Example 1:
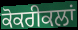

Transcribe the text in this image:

ਕੋਕਰੀਕਲਾਂ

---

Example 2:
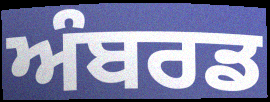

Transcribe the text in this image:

ਅੰਬਰਡ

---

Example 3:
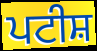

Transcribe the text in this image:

ਪਟੀਸ਼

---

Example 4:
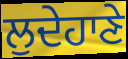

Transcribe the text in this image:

ਲੁਦੇਹਾਣੇ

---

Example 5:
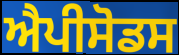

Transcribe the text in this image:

ਐਪੀਸੋਡਸ